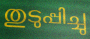
തുടുപ്പിച്ചു